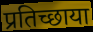
प्रतिच्छाया